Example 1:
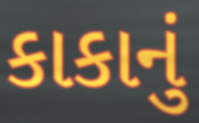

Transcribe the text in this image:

કાકાનું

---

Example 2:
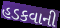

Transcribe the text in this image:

હડકવાની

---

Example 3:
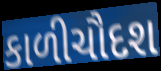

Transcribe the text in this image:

કાળીચૌદશ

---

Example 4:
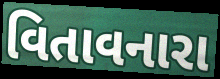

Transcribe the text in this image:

વિતાવનારા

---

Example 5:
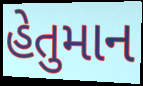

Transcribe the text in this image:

હેતુમાન